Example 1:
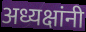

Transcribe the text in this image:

अध्यक्षांनी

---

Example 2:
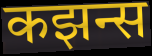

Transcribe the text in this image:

कझन्स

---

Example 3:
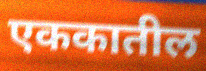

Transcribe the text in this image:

एककातील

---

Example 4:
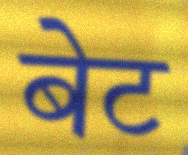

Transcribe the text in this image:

बेट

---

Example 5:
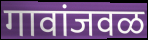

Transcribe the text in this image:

गावांजवळ